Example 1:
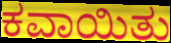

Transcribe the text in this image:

ಕವಾಯಿತು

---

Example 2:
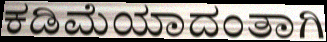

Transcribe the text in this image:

ಕಡಿಮೆಯಾದಂತಾಗಿ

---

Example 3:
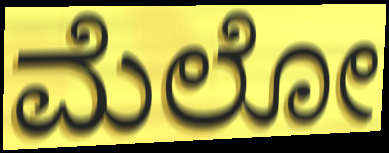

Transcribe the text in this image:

ಮೆಲೋ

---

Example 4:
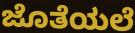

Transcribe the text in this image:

ಜೊತೆಯಲೆ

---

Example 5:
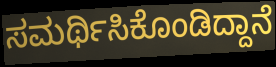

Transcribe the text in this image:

ಸಮರ್ಥಿಸಿಕೊಂಡಿದ್ದಾನೆ